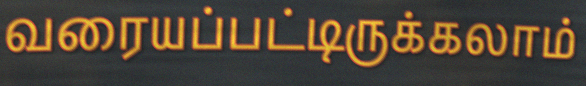
வரையப்பட்டிருக்கலாம்